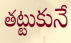
తట్టుకునే